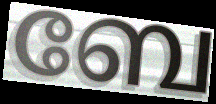
ബേ